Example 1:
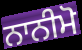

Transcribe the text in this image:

ਨਾਨੀਮੋ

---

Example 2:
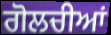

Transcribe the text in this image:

ਗੋਲਚੀਆਂ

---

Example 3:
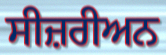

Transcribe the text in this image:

ਸੀਜ਼ਰੀਅਨ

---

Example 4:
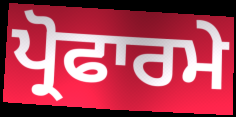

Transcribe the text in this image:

ਪ੍ਰੋਫਾਰਮੇ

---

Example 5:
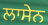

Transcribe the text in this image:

ਲਾਸੇਨ